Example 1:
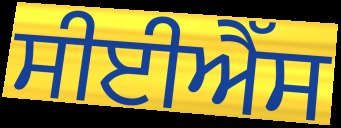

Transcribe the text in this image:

ਸੀਈਐੱਸ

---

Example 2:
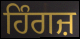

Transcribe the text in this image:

ਹਿੰਗਜ਼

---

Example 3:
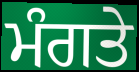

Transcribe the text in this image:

ਮੰਗਤੇ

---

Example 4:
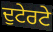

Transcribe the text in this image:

ਦੁਟੇਰਟੇ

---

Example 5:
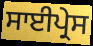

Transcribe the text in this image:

ਸਾਈਪ੍ਰੇਸ